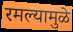
रमल्यामुळे